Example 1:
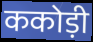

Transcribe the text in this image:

ककोड़ी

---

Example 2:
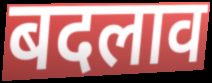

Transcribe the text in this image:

बदलाव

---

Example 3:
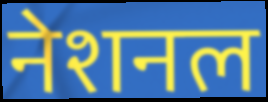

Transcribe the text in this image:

नेशनल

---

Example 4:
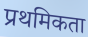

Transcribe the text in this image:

प्रथमिकता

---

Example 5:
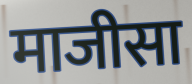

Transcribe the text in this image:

माजीसा